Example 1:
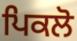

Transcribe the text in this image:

ਪਿਕਲੋ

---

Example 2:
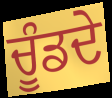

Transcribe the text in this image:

ਚੂੰਡਦੇ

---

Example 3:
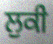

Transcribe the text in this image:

ਲੁਕੀ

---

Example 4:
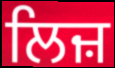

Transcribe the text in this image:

ਲਿਜ਼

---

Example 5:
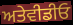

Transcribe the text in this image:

ਅਤੇਵੀਡੀਓ